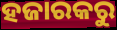
ହଜାରକରୁ